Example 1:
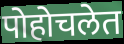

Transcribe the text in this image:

पोहोचलेत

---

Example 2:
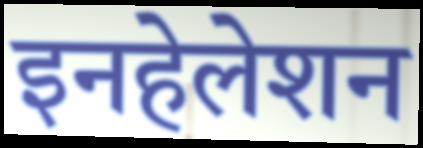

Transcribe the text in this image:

इनहेलेशन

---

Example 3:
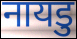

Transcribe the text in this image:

नायडु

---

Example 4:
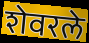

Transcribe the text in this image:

शेवरले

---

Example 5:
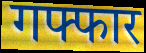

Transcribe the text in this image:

गफ्फार